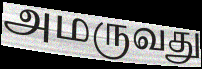
அமருவது